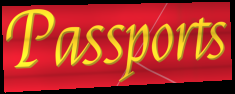
Passports